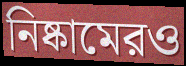
নিষ্কামেরও